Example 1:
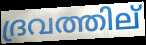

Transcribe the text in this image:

ദ്രവത്തില്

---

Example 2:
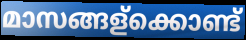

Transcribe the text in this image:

മാസങ്ങള്ക്കൊണ്ട്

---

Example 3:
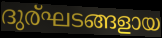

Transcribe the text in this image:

ദുര്ഘടങ്ങളായ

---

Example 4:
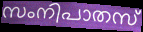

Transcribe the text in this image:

സംനിപാതസ്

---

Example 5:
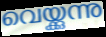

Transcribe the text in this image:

വെയ്ക്കുന്നു